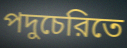
পদুচেরিতে